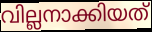
വില്ലനാക്കിയത്